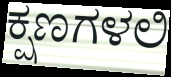
ಕ್ಷಣಗಳಲಿ